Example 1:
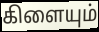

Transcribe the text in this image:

கிளையும்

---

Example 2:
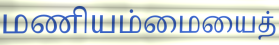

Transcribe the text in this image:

மணியம்மையைத்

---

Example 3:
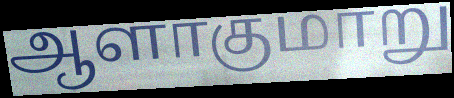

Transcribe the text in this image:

ஆளாகுமாறு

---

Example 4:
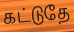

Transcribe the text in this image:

கட்டுதே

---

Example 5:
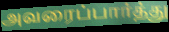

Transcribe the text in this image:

அவரைப்பார்த்து